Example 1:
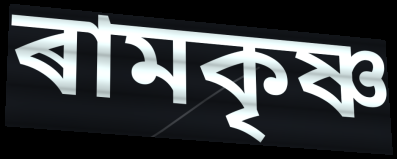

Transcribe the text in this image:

ৰামকৃষ্ণ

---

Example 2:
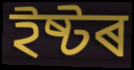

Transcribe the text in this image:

ইষ্টৰ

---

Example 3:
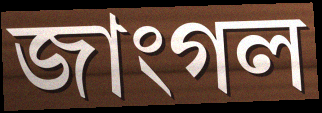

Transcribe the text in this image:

জাংগল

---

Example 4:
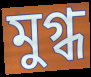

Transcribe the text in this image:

মুগ্ধ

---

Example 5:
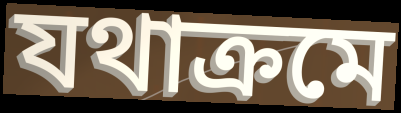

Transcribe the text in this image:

যথাক্ৰমে